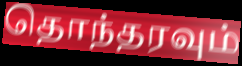
தொந்தரவும்